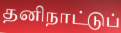
தனிநாட்டுப்